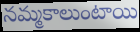
నమ్మకాలుంటాయి